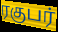
ரகுபர்